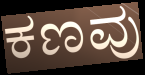
ಕಣವು